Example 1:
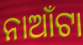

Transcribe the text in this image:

ନାଆଁଟା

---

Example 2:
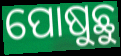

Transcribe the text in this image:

ପୋଷୁଛୁ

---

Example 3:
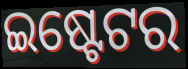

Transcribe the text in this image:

ଇଷ୍ଟେଟର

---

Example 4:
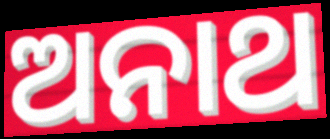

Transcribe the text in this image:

ଅନାଥ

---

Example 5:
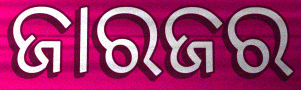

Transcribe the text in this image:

ଜାରଜର